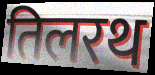
तिलरथ